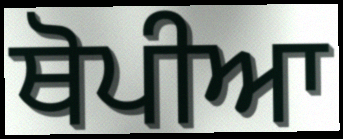
ਥੋਪੀਆ